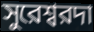
সুরেশ্বরদা